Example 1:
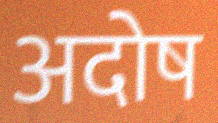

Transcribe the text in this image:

अदोष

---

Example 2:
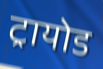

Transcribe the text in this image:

ट्रायोड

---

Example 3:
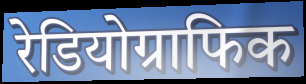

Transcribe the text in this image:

रेडियोग्राफिक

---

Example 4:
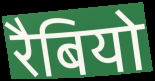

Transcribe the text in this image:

रैबियो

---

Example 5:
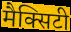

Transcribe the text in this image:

मैक्सिटी